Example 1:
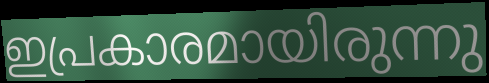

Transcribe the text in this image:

ഇപ്രകാരമായിരുന്നു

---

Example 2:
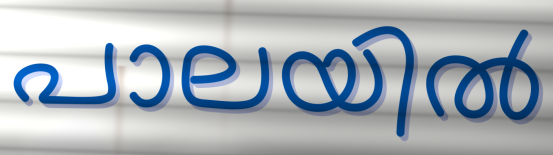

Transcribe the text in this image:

പാലയിൽ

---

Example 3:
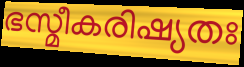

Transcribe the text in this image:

ഭസ്മീകരിഷ്യതഃ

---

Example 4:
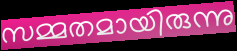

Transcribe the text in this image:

സമ്മതമായിരുന്നു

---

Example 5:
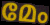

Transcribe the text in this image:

മേം